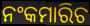
ନଂକମାରିଚ